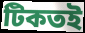
টিকতই